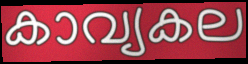
കാവ്യകല